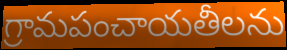
గ్రామపంచాయతీలను